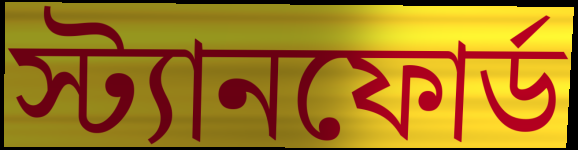
স্ট্যানফোর্ড